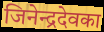
जिनेन्द्रदेवका